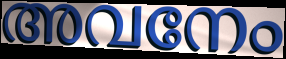
അവനേം